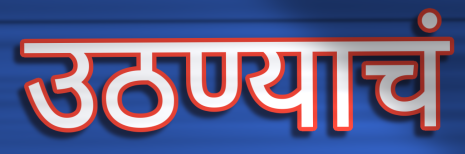
उठण्याचं